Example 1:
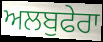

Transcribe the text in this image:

ਅਲਬੁਫੇਰਾ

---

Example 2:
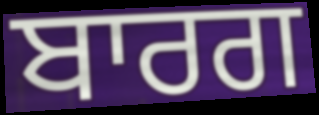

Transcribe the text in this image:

ਬਾਰਗ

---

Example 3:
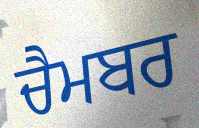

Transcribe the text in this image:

ਚੈਮਬਰ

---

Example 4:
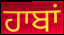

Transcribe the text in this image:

ਹਾਬਾਂ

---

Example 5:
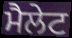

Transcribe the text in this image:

ਮੈਲੇਟ